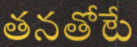
తనతోటే